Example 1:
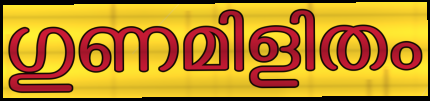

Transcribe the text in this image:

ഗുണമിളിതം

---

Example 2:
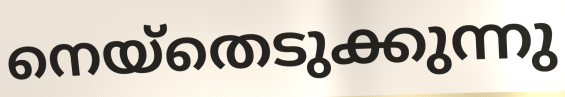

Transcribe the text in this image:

നെയ്തെടുക്കുന്നു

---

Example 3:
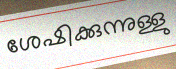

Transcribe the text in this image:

ശേഷിക്കുന്നുള്ളു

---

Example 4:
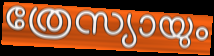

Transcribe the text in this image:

ത്രേസ്യായും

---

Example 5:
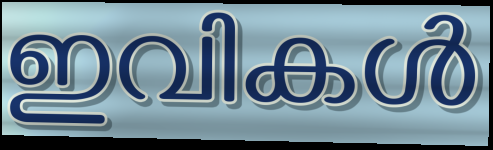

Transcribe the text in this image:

ഇവികൾ